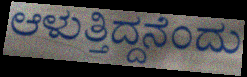
ಆಳುತ್ತಿದ್ದನೆಂದು